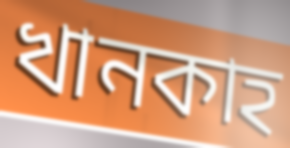
খানকাহ